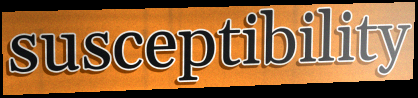
susceptibility